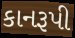
કાનરૂપી